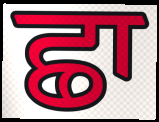
ਛਾ